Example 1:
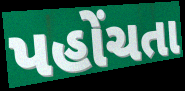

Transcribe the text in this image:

પહોંચતા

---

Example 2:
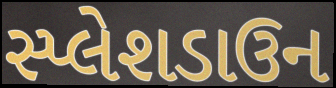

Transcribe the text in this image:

સ્પ્લેશડાઉન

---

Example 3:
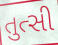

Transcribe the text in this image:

તુત્સી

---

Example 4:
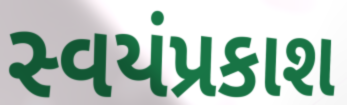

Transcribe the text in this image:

સ્વયંપ્રકાશ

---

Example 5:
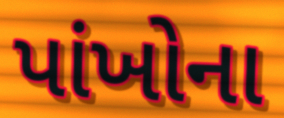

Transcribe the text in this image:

પાંખોના